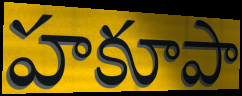
హకూపా